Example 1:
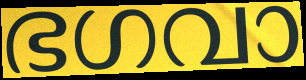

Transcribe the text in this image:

ഭഗവാ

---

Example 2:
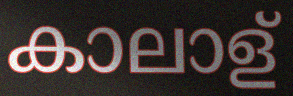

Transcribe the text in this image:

കാലാള്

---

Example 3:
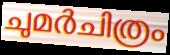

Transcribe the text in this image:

ചുമർചിത്രം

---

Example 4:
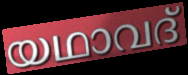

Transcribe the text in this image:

യഥാവദ്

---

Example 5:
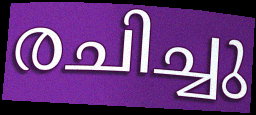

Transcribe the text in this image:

രചിച്ചു